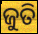
ଜୁତି